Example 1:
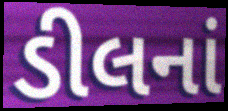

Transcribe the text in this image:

ડીલનાં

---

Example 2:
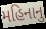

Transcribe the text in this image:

મહિનાનુ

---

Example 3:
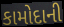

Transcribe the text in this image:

કામોદાની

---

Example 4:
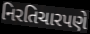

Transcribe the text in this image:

નિરતિચારપણે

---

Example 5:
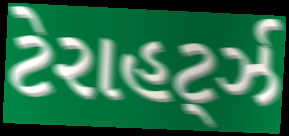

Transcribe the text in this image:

ટેરાહર્ટ્ઝ